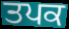
ਤਪਕ